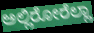
ಅಲ್ಲಿರೋರೆಲ್ಲಾ